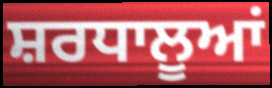
ਸ਼ਰਧਾਲੂਆਂ